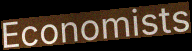
Economists